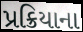
પ્રક્રિયાના